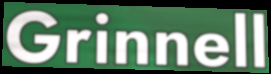
Grinnell